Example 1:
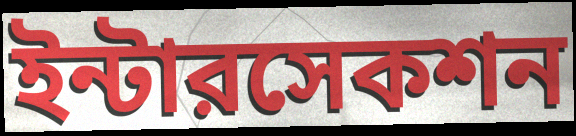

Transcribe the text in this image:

ইন্টারসেকশন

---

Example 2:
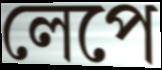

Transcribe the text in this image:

লেপে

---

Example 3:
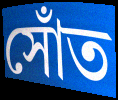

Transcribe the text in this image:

সোঁত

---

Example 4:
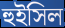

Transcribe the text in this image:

হুইসিল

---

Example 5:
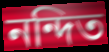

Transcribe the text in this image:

নন্দিত